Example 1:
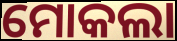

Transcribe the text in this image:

ମୋକଲା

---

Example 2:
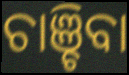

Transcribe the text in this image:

ଚାଞ୍ଚିବା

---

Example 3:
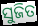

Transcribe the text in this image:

ସୁଜିତ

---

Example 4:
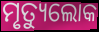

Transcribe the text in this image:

ମୃତ୍ୟୁଲୋକ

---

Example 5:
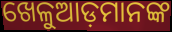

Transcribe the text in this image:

ଖେଳୁଆଡ଼ମାନଙ୍କ